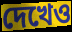
দেখেও